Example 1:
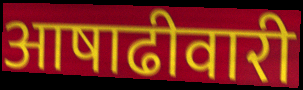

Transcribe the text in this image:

आषाढीवारी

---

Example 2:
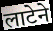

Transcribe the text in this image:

लाटेने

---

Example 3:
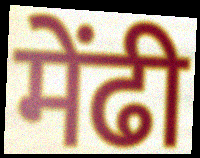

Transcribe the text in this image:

मेंढी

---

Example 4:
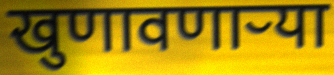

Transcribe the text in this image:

खुणावणाऱ्या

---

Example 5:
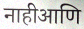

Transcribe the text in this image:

नाहीआणि